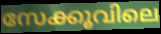
സേക്കൂവിലെ